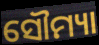
ସୌମ୍ୟା